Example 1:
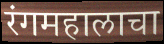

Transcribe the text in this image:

रंगमहालाचा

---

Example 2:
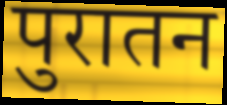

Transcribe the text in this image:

पुरातन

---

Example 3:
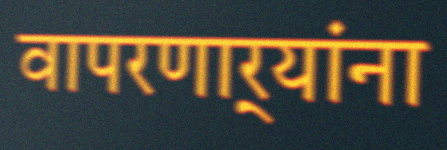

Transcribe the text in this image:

वापरणार्यांना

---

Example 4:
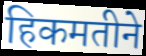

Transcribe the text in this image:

हिकमतीने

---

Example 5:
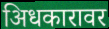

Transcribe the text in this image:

अिधकारावर